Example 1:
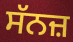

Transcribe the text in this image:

ਸੱਨਜ਼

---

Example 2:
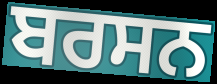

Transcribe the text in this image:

ਬਰਸਨ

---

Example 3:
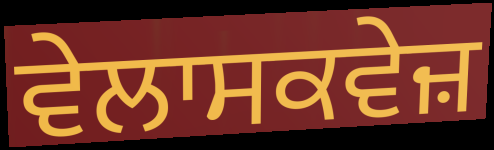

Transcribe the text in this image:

ਵੇਲਾਸਕਵੇਜ਼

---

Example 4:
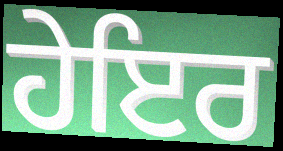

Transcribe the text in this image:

ਹੇਇਰ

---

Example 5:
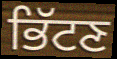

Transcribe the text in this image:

ਭਿੱਟਣ